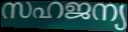
സഹജന്യ